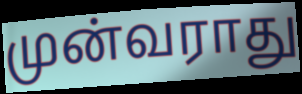
முன்வராது